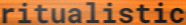
ritualistic